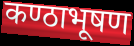
कण्ठाभूषण